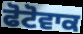
ਫੋਟੋਵਾਕ